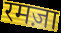
रमज़ा